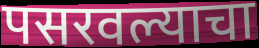
पसरवल्याचा